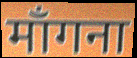
माँगना